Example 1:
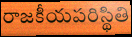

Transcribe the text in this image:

రాజకీయపరిస్థితి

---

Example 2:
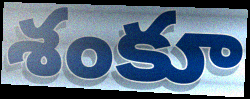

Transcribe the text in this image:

శంకూ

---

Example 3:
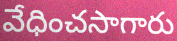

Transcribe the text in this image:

వేధించసాగారు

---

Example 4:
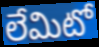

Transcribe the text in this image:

లేమిటో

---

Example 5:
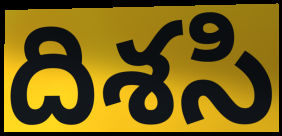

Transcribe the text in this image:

దిశసి